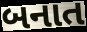
બનાત